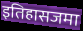
इतिहासजमा